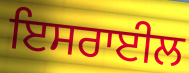
ਇਸਰਾਈਲ